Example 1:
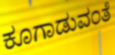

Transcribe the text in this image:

ಕೂಗಾಡುವಂತೆ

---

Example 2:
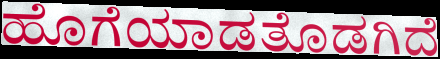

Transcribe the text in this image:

ಹೊಗೆಯಾಡತೊಡಗಿದೆ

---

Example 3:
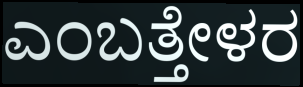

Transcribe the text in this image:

ಎಂಬತ್ತೇಳರ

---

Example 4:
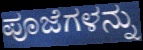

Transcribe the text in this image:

ಪೂಜೆಗಳನ್ನು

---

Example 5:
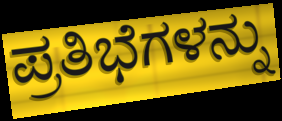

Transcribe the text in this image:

ಪ್ರತಿಭೆಗಳನ್ನು